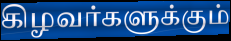
கிழவர்களுக்கும்